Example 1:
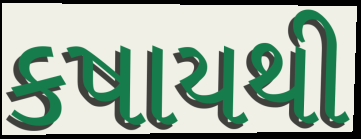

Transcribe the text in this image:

કષાયથી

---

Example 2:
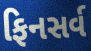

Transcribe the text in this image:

ફિનસર્વ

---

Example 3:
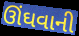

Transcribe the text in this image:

ઊંઘવાની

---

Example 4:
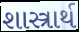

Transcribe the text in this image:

શાસ્ત્રાર્થ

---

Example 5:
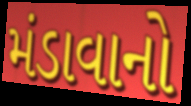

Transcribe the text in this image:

મંડાવાનો